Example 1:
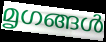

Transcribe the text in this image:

മൃഗങ്ങൾ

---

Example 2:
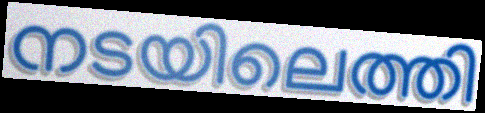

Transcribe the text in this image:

നടയിലെത്തി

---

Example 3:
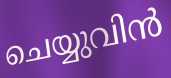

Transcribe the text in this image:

ചെയ്യുവിൻ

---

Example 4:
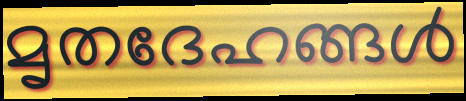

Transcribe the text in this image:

മൃതദേഹങ്ങൾ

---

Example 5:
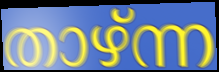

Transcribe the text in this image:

താഴ്ന്ന